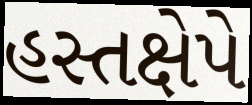
હસ્તક્ષેપે